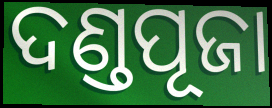
ଦଣ୍ଡପୂଜା